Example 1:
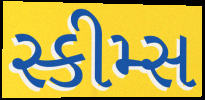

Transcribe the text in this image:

સ્કીમ્સ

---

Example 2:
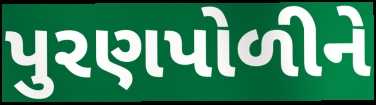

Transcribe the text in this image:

પુરણપોળીને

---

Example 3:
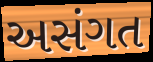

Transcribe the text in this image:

અસંગત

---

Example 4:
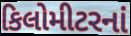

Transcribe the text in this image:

કિલોમીટરનાં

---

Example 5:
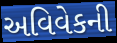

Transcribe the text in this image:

અવિવેકની